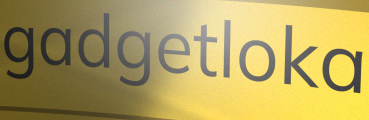
gadgetloka